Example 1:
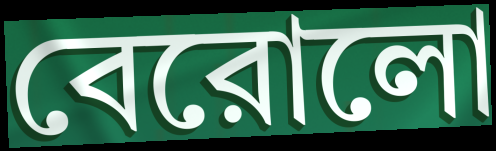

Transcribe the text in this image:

বেরোলো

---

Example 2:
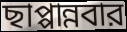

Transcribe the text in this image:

ছাপ্পান্নবার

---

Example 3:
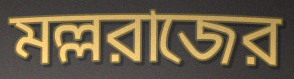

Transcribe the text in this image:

মল্লরাজের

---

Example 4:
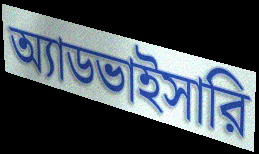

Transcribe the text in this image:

অ্যাডভাইসারি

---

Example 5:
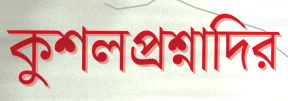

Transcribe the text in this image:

কুশলপ্রশ্নাদির